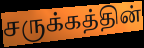
சருக்கத்தின்